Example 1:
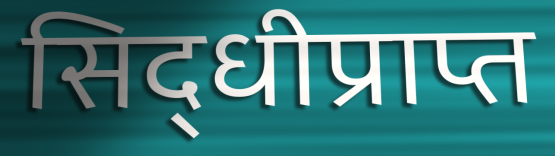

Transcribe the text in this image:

सिद्धीप्राप्त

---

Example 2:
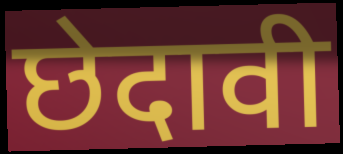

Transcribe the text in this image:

छेदावी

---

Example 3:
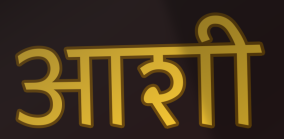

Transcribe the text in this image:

आशी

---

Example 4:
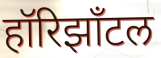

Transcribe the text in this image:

हॉरिझाँटल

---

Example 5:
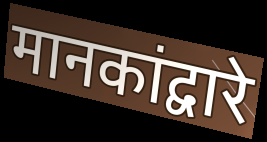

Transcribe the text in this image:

मानकांद्वारे